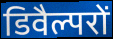
डिवैल्परों